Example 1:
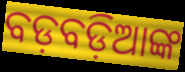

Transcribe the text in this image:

ବଡ଼ବଡ଼ିଆଙ୍କ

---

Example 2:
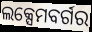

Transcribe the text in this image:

ଲକ୍ସେମବର୍ଗର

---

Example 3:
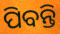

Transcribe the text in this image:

ପିବନ୍ତି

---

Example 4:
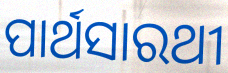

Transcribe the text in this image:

ପାର୍ଥସାରଥୀ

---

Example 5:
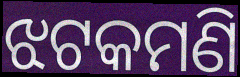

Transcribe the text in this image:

ଝଟକମଣି